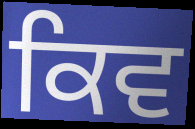
ਕਿਵ